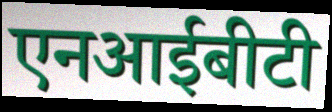
एनआईबीटी